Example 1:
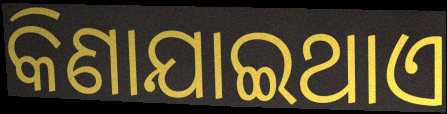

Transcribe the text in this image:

କିଣାଯାଇଥାଏ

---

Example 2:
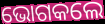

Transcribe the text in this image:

ଭୋଗକଲେ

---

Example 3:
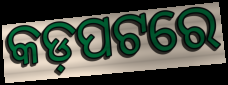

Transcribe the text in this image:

କଡ଼ପଟରେ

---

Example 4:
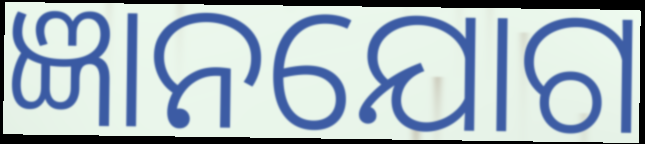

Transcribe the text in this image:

ଜ୍ଞାନଯୋଗ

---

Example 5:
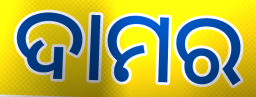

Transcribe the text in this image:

ଦାମର